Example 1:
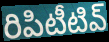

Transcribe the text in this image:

రిపిటీటివ్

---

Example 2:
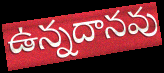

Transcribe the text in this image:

ఉన్నదానవు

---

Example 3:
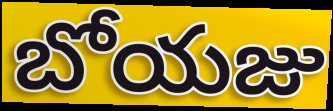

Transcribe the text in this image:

బోయజు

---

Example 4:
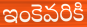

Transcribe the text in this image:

ఇంకెవరికి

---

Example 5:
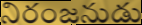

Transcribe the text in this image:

నిరంజనుడు